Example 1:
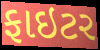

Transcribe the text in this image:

ફાઇટર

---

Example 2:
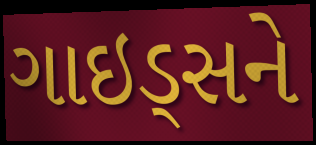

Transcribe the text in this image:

ગાઇડ્સને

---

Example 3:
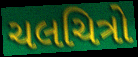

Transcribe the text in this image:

ચલચિત્રો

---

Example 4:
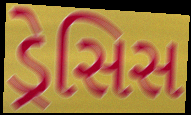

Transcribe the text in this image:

ડ્રેસિસ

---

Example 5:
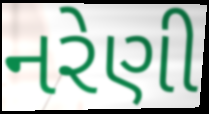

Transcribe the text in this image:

નરેણી